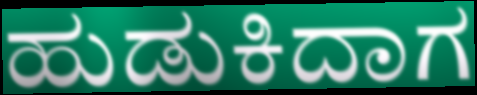
ಹುಡುಕಿದಾಗ